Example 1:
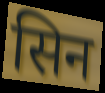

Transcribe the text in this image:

सिन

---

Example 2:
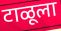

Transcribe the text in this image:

टाळूला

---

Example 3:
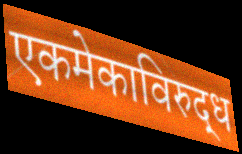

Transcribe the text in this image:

एकमेकाविरुद्ध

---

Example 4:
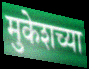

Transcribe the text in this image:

मुकेशच्या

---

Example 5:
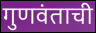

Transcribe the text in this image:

गुणवंताची